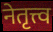
नेतृत्त्व